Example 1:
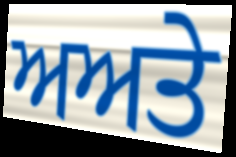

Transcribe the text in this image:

ਅਅਤੇ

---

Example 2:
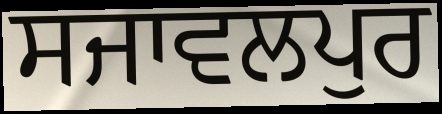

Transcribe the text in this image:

ਸਜਾਵਲਪੁਰ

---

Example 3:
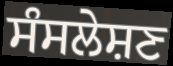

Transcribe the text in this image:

ਸੰਸਲੇਸ਼ਣ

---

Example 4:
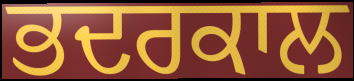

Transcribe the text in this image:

ਭਦਰਕਾਲ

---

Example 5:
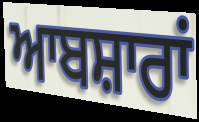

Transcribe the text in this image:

ਆਬਸ਼ਾਰਾਂ